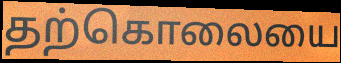
தற்கொலையை